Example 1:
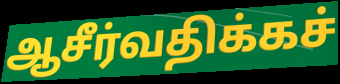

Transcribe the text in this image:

ஆசீர்வதிக்கச்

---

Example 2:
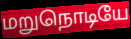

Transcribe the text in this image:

மறுநொடியே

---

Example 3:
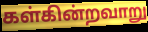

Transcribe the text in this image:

கள்கின்றவாறு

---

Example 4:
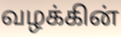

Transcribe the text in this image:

வழக்கின்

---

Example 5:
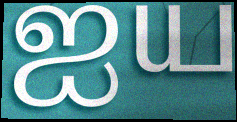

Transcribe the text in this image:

ஐய